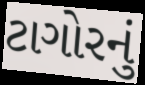
ટાગોરનું